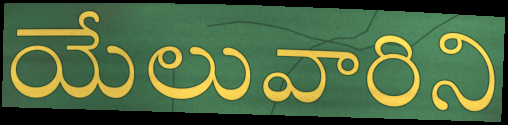
యేలువారిని